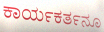
ಕಾರ್ಯಕರ್ತನೂ